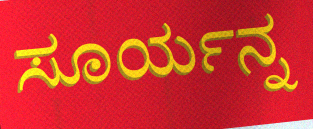
ಸೂರ್ಯನ್ನ